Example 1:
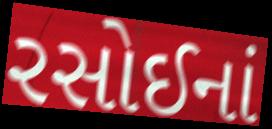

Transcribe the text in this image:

રસોઈનાં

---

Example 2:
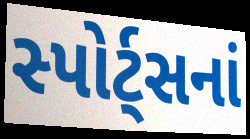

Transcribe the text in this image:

સ્પોર્ટ્સનાં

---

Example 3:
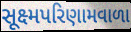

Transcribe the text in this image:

સૂક્ષ્મપરિણામવાળા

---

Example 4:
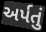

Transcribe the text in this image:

અર્પતું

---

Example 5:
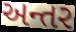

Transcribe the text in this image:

અન્તર